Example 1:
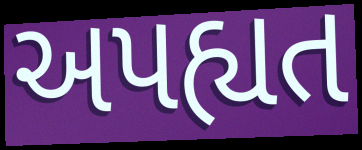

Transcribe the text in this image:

અપહ્યત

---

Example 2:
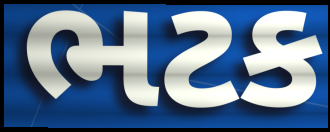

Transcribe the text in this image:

ભટક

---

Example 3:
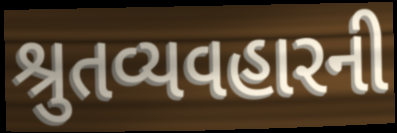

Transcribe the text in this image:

શ્રુતવ્યવહારની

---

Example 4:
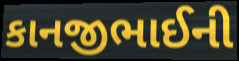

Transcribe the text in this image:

કાનજીભાઈની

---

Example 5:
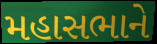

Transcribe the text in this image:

મહાસભાને